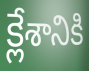
క్లేశానికి